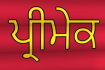
ਪ੍ਰੀਮੇਕ